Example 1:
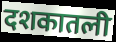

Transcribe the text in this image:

दशकातली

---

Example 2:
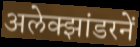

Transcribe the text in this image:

अलेक्झांडरनें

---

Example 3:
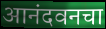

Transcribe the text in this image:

आनंदवनचा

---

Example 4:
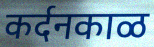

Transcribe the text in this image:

कर्दनकाळ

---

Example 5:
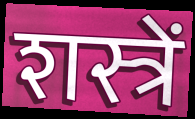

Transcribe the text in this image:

शस्त्रें